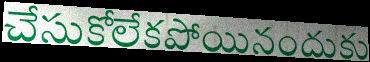
చేసుకోలేకపోయినందుకు